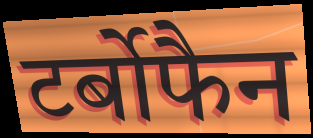
टर्बोफैन